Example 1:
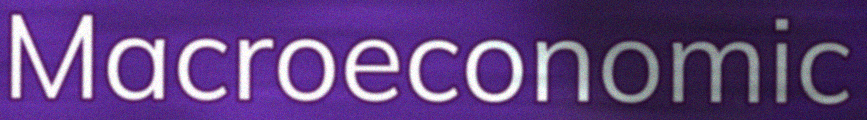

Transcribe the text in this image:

Macroeconomic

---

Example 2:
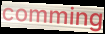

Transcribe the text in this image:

comming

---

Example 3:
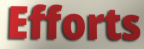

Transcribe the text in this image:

Efforts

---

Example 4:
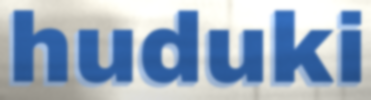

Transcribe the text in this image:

huduki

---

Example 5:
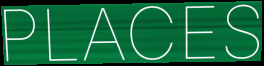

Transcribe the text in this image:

PLACES